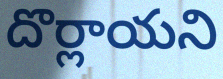
దొర్లాయని